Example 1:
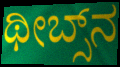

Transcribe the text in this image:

ಥೀಬ್ಸ್‌ನ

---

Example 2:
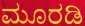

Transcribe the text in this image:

ಮೂರಡಿ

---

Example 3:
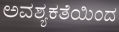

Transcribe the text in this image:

ಅವಶ್ಯಕತೆಯಿಂದ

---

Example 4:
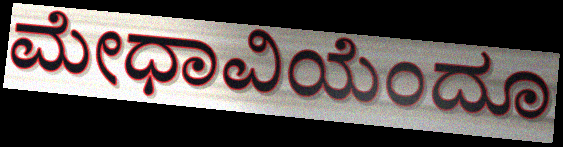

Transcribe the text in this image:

ಮೇಧಾವಿಯೆಂದೂ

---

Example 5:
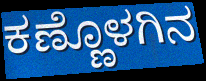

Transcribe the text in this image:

ಕಣ್ಣೊಳಗಿನ